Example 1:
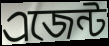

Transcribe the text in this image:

এজেন্ট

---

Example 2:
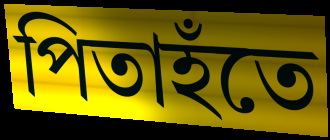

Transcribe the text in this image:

পিতাহঁতে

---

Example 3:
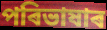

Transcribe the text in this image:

পৰিভাষাৰ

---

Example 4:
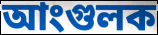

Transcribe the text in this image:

আংগুলক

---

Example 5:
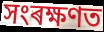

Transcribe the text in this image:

সংৰক্ষণত